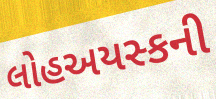
લોહઅયસ્કની